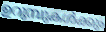
ഉറുമ്പുകൾക്കും